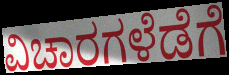
ವಿಚಾರಗಳೆಡೆಗೆ